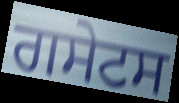
ਗਸੇਟਸ